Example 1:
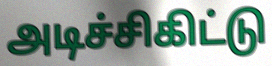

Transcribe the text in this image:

அடிச்சிகிட்டு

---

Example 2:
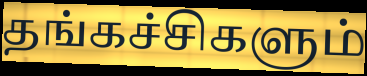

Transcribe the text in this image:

தங்கச்சிகளும்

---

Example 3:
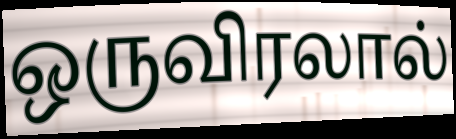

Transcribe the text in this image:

ஒருவிரலால்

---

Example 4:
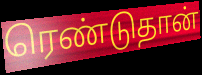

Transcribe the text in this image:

ரெண்டுதான்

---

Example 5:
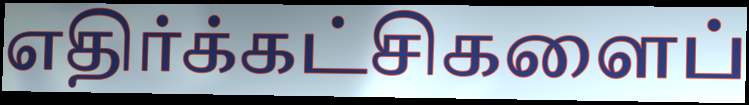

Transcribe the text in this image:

எதிர்க்கட்சிகளைப்